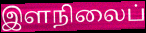
இளநிலைப்